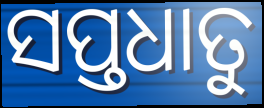
ସପ୍ତଧାତୁ